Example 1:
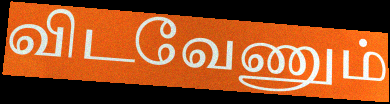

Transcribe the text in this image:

விடவேணும்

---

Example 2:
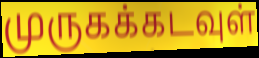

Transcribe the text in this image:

முருகக்கடவுள்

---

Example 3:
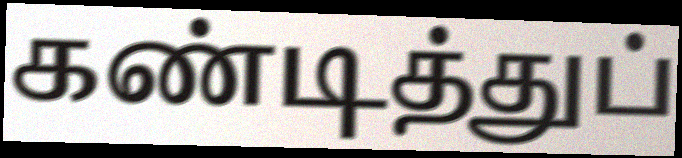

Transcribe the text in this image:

கண்டித்துப்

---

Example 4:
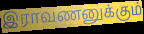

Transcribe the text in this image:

இராவணனுக்கும்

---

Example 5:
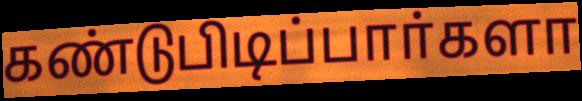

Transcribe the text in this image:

கண்டுபிடிப்பார்களா